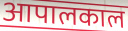
आपालकाल